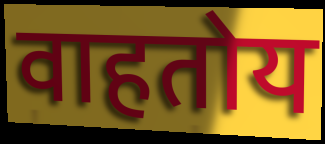
वाहतोय